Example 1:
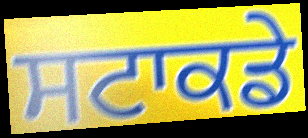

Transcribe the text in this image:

ਸਟਾਕਡੇ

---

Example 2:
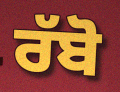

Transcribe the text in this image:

ਰੱਬੋ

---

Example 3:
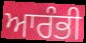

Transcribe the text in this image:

ਆਰੰਭੀ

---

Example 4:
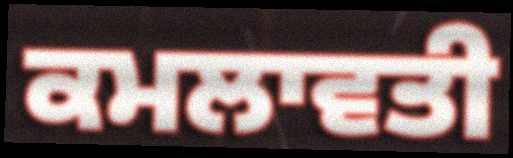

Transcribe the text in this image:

ਕਮਲਾਵਤੀ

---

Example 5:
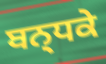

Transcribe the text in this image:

ਬਨ੍ਧਕੇ